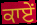
ਕਾਏਂ